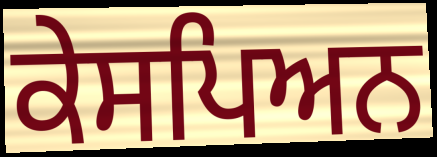
ਕੇਸਪਿਅਨ